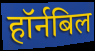
हॉर्नबिल